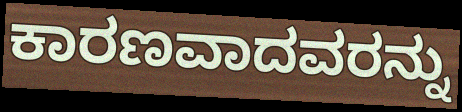
ಕಾರಣವಾದವರನ್ನು